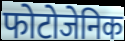
फोटोजेनिक